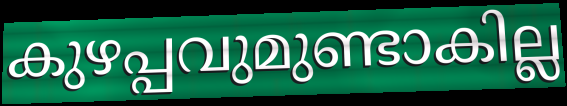
കുഴപ്പവുമുണ്ടാകില്ല